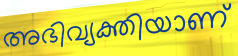
അഭിവ്യക്തിയാണ്